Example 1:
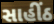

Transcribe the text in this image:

સાહીંઠ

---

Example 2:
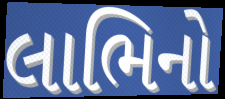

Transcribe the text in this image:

લાભિનો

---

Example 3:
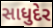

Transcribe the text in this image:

સાધુદેર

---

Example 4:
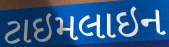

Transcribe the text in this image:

ટાઇમલાઇન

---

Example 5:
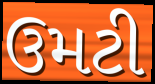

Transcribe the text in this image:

ઉમટી